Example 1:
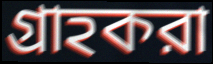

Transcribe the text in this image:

গ্রাহকরা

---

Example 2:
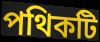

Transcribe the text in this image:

পথিকটি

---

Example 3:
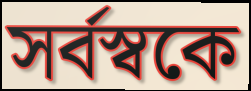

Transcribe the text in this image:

সর্বস্বকে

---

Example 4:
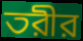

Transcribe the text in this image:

তরীর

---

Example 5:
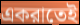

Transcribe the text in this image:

একরাতেই